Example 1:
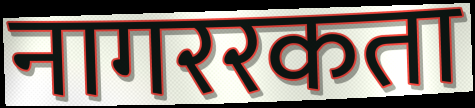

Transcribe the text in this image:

नागररकता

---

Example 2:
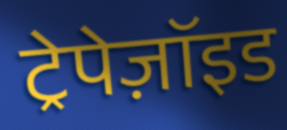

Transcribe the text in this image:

ट्रेपेज़ॉइड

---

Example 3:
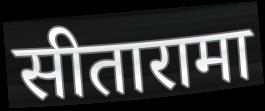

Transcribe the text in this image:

सीतारामा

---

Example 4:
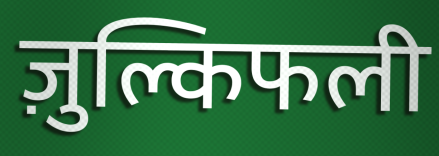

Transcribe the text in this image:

ज़ुल्किफली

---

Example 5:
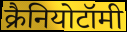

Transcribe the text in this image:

क्रैनियोटॉमी